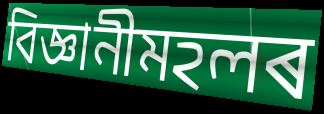
বিজ্ঞানীমহলৰ